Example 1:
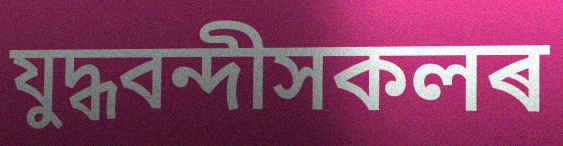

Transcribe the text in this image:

যুদ্ধবন্দীসকলৰ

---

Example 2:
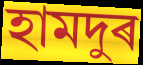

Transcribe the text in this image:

হামদুৰ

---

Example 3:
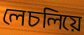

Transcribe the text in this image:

লেচলিয়ে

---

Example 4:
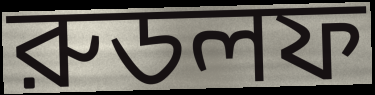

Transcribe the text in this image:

ৰুডলফ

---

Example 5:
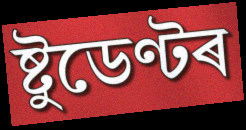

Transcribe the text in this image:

ষ্টুডেণ্টৰ